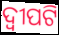
ଦ୍ୱୀପଟି